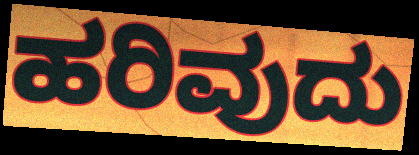
ಹರಿವುದು